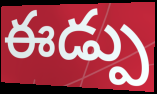
ఈడ్పు